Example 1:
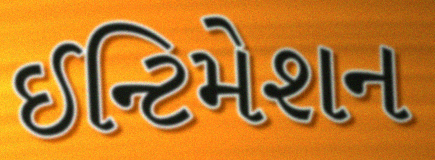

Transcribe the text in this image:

ઈન્ટિમેશન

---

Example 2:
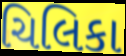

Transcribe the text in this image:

ચિલિકા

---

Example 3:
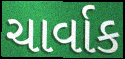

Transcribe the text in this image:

ચાર્વાક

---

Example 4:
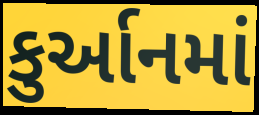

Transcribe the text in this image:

કુર્આનમાં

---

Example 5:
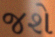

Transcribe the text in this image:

જશે